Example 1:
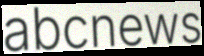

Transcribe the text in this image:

abcnews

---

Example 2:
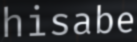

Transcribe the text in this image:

hisabe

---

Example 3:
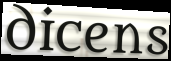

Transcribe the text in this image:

dicens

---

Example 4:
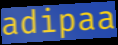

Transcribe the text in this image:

adipaa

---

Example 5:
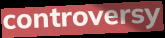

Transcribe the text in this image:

controversy